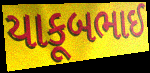
યાકૂબભાઈ